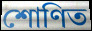
শোণিত